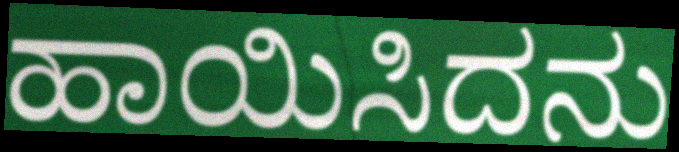
ಹಾಯಿಸಿದನು